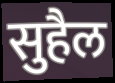
सुहैल